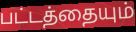
பட்டத்தையும்